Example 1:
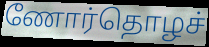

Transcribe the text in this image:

ணோர்தொழச்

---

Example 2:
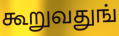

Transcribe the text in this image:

கூறுவதுங்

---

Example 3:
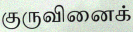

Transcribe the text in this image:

குருவினைக்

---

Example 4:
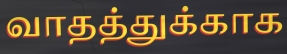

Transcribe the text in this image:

வாதத்துக்காக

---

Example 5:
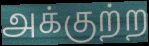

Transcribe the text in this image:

அக்குற்ற